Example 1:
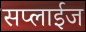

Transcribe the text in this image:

सप्लाईज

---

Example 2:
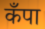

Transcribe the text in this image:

कँपा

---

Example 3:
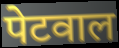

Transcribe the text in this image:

पेटवाल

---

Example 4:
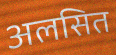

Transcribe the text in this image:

अलसित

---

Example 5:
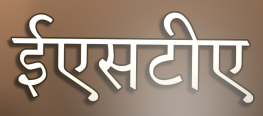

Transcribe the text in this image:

ईएसटीए